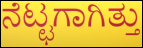
ನೆಟ್ಟಗಾಗಿತ್ತು